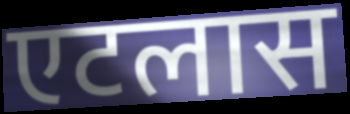
एटलास